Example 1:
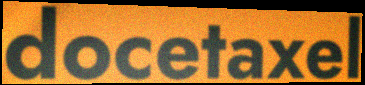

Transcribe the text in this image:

docetaxel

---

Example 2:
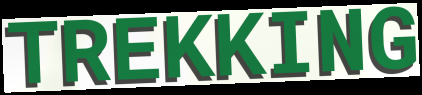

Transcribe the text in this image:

TREKKING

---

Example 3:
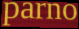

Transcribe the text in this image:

parno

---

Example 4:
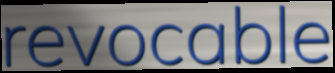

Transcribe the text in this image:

revocable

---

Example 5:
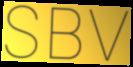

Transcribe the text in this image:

SBV